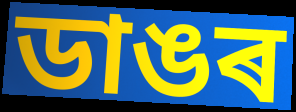
ডাঙৰ